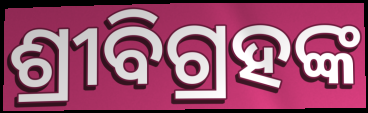
ଶ୍ରୀବିଗ୍ରହଙ୍କ